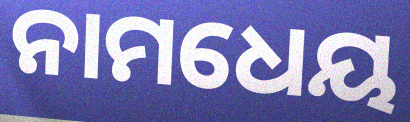
ନାମଧେୟ